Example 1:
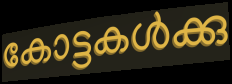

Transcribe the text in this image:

കോട്ടകൾക്കു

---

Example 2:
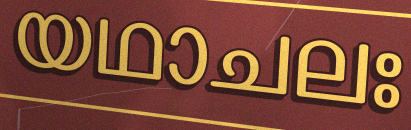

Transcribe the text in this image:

യഥാചലഃ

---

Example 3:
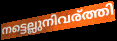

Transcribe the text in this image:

നട്ടെല്ലുനിവര്ത്തി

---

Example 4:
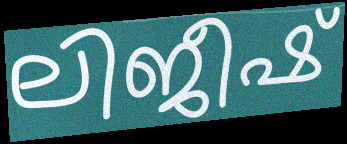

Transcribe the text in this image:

ലിജീഷ്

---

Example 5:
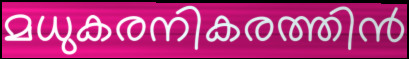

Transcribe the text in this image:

മധുകരനികരത്തിൻ